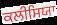
ਕਲੀਸਿਯਾ